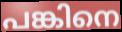
പങ്കിനെ